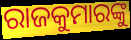
ରାଜକୁମାରଙ୍କୁ